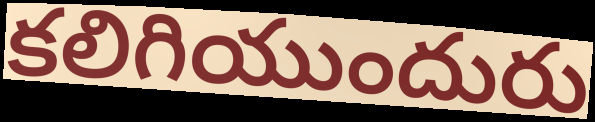
కలిగియుందురు